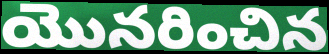
యొనరించిన